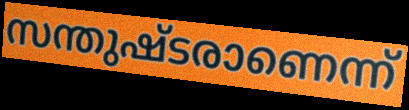
സന്തുഷ്ടരാണെന്ന്